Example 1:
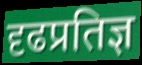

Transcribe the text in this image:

दृढप्रतिज्ञ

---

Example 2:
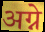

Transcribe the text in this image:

अग्ने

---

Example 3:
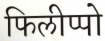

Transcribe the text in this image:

फिलीप्पो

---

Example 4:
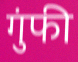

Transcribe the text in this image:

गुंफी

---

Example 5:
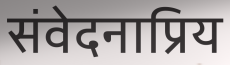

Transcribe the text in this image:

संवेदनाप्रिय